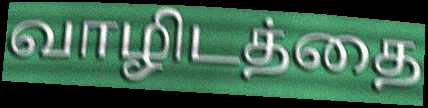
வாழிடத்தை